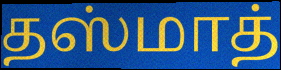
தஸ்மாத்